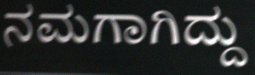
ನಮಗಾಗಿದ್ದು